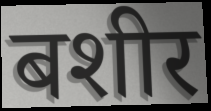
बशीर